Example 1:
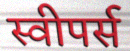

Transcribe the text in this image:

स्वीपर्स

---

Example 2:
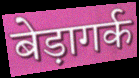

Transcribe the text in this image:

बेड़ागर्क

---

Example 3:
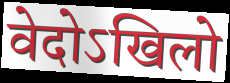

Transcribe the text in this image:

वेदोऽखिलो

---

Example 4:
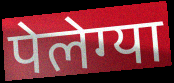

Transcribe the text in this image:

पेलेग्या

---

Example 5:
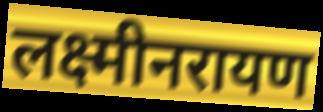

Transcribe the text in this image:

लक्ष्मीनरायण